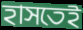
হাসতেই